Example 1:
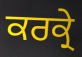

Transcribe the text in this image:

ਕਰਕ੍ਰੇ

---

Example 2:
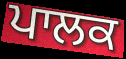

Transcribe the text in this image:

ਪਾਲਕ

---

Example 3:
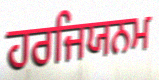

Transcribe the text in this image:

ਹਰਜਿਯਨਮ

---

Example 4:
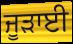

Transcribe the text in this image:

ਜੂੜਾਈ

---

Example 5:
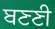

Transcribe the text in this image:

ਬਣਣੀ